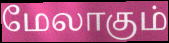
மேலாகும்